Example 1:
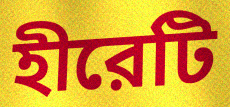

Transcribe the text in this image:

হীরেটি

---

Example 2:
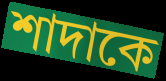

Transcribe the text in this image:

শাদাকে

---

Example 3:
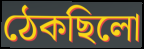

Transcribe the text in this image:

ঠেকছিলো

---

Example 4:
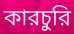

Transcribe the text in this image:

কারচুরি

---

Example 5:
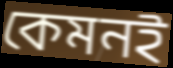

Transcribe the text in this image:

কেমনই